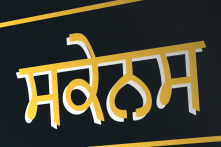
ਸਕੇਨਸ